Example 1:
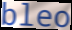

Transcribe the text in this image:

bleo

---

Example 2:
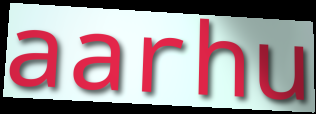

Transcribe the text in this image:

aarhu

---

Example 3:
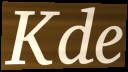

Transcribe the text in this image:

Kde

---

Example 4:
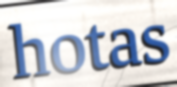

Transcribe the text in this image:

hotas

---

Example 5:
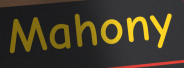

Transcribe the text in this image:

Mahony